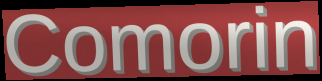
Comorin